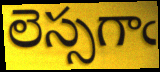
లెస్సగాఁ